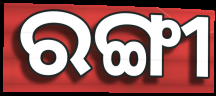
ରଙ୍ଗୀ